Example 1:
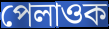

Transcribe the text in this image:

পেলাওক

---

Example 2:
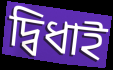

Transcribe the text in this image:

দ্বিধাই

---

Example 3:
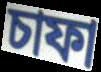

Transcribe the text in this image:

চাফা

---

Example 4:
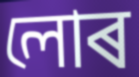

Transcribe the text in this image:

লোৰ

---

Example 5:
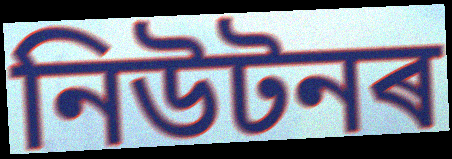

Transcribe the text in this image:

নিউটনৰ